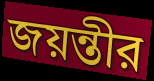
জয়ন্তীর